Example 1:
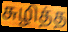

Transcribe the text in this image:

சுழித்த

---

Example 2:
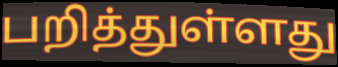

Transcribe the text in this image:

பறித்துள்ளது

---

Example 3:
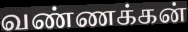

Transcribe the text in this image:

வண்ணக்கன்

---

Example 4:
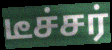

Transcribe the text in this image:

டீச்சர்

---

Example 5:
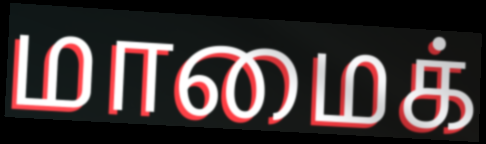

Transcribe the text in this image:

மாமைக்